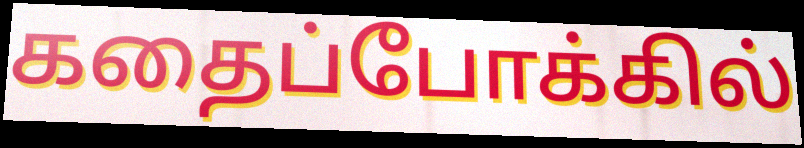
கதைப்போக்கில்